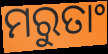
ମରୁତାଂ